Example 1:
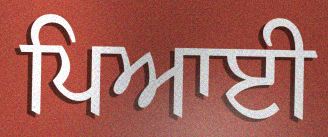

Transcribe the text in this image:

ਪਿਆਈ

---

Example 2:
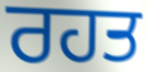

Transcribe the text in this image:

ਰਹਤ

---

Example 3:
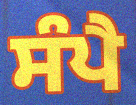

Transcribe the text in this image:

ਸੰਪੈ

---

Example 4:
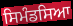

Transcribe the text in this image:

ਸਿਮੰਡਸਿਆ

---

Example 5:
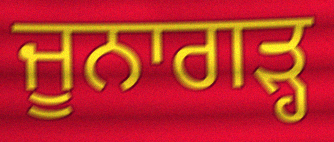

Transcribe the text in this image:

ਜੂਨਾਗੜ੍ਹ